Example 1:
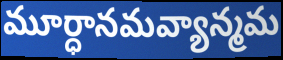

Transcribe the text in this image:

మూర్ధానమవ్యాన్మమ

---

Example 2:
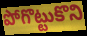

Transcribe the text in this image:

పోగొట్టుకొని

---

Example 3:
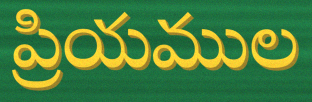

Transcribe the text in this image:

ప్రియముల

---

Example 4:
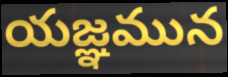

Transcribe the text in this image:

యజ్ఞమున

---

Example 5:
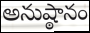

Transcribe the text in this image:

అనుష్ఠానం